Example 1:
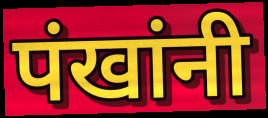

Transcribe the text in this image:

पंखांनी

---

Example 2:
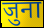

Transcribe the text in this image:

जुना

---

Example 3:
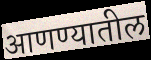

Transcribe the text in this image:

आणण्यातील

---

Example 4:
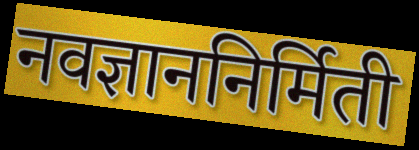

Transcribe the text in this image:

नवज्ञाननिर्मिती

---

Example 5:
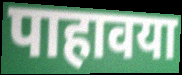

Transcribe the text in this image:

पाहावया